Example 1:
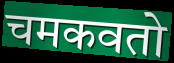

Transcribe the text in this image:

चमकवतो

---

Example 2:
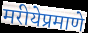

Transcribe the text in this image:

मरीयेप्रमाणे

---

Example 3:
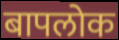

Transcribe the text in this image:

बापलोक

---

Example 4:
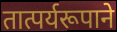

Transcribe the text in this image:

तात्पर्यरूपाने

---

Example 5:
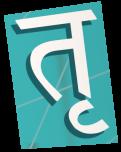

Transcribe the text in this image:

तृ